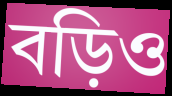
বড়িও